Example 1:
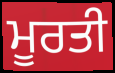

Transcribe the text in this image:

ਮੂਰਤੀ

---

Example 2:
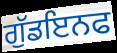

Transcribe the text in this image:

ਗੁੱਡਇਨਫ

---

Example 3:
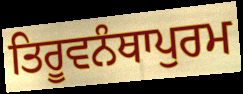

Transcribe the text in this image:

ਤਿਰੂਵਨੰਥਾਪੁਰਮ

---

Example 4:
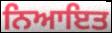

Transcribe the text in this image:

ਨਿਆਇਤ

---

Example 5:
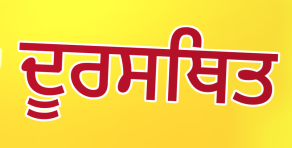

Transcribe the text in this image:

ਦੂਰਸਥਿਤ